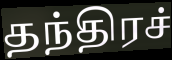
தந்திரச்